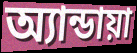
অ্যান্ডায়া